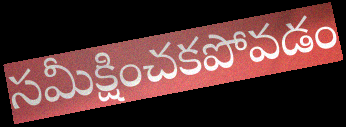
సమీక్షించకపోవడం